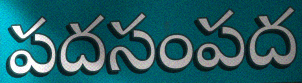
పదసంపద